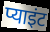
प्याइंट